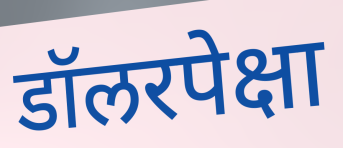
डॉलरपेक्षा